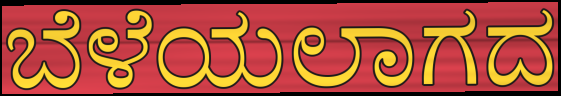
ಬೆಳೆಯಲಾಗದ